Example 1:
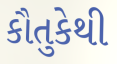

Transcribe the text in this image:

કૌતુકેથી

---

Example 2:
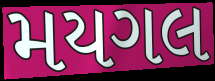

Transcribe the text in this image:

મયગલ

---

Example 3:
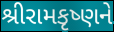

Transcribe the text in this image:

શ્રીરામકૃષ્ણને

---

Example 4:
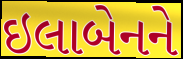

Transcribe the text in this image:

ઇલાબેનને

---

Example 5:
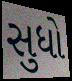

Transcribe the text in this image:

સુધો